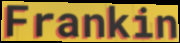
Frankin